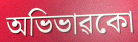
অভিভাৱকো